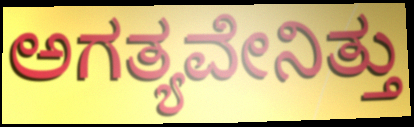
ಅಗತ್ಯವೇನಿತ್ತು